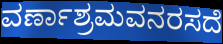
ವರ್ಣಾಶ್ರಮವನರಸದೆ